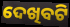
ଦେଖିବଟି